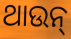
ଥାଉନ୍